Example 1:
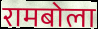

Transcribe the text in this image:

रामबोला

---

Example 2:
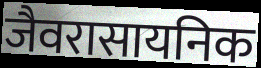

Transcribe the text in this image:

जैवरासायनिक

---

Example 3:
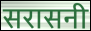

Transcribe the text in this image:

सरासनी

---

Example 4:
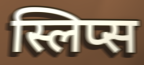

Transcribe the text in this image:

स्लिप्स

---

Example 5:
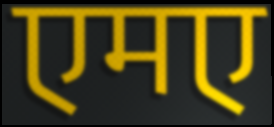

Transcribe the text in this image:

एमए